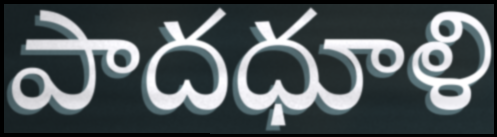
పాదధూళి